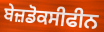
ਬੇਜ਼ਡੋਕਸੀਫੀਨ